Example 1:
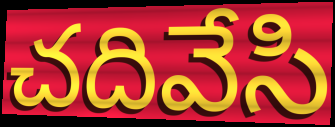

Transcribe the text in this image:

చదివేసి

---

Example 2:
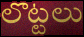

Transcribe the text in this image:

లొట్టలు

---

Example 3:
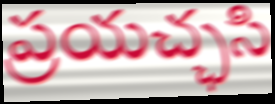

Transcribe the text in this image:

ప్రయచ్ఛసి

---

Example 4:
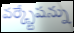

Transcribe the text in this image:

వర్క్స్టేషన్ను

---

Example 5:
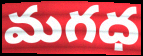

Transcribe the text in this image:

మగధ